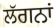
ਲੱਗਨਾਂ